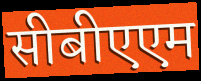
सीबीएएम